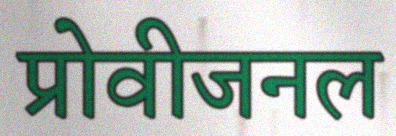
प्रोवीजनल